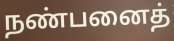
நண்பனைத்